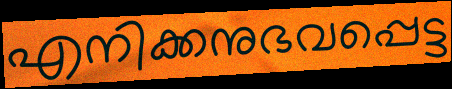
എനിക്കനുഭവപ്പെട്ട